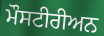
ਮੌਸਟੀਰੀਅਨ